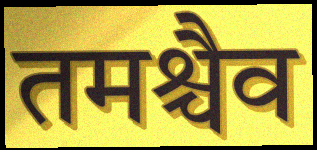
तमश्चैव